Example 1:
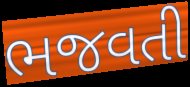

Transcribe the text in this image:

ભજવતી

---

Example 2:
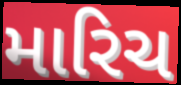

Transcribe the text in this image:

મારિચ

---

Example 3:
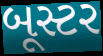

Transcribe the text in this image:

બૂસ્ટર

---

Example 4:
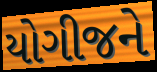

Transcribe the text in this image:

યોગીજને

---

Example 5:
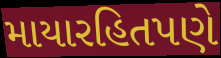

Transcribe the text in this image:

માયારહિતપણે